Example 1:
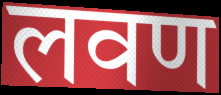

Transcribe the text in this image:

लवण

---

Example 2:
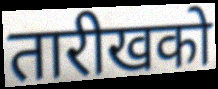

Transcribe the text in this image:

तारीखको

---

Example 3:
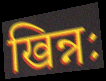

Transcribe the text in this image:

खिन्नः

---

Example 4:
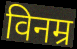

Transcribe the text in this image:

विनम्र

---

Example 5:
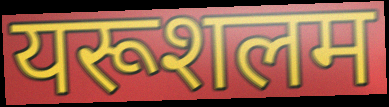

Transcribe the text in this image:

यरूशलम